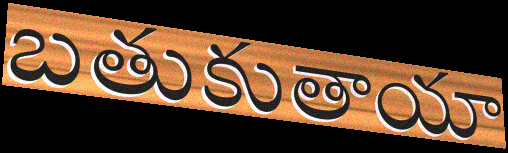
బతుకుతాయా